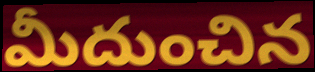
మీదుంచిన